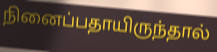
நினைப்பதாயிருந்தால்